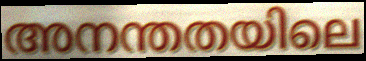
അനന്തതയിലെ